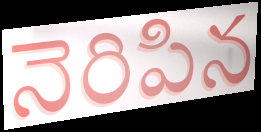
నెరిపిన